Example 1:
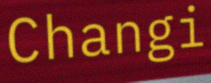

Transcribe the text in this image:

Changi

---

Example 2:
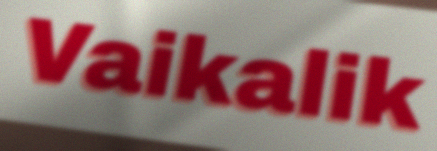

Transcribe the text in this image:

Vaikalik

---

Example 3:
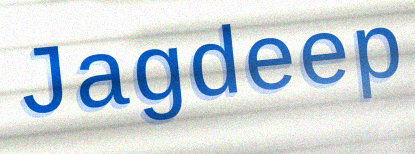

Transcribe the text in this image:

Jagdeep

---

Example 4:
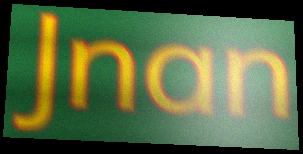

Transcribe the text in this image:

Jnan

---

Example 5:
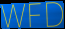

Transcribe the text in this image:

WFD